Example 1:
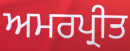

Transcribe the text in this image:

ਅਮਰਪ੍ਰੀਤ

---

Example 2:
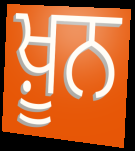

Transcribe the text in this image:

ਖ਼ੂਨ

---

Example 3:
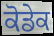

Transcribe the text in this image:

ਕੋਡੇਕ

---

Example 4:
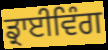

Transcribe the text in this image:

ਡ੍ਰਾਈਵਿੰਗ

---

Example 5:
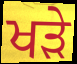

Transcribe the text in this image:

ਖੜੇ